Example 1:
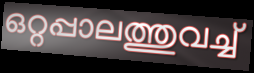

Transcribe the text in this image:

ഒറ്റപ്പാലത്തുവച്ച്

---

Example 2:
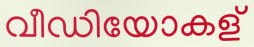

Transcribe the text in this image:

വീഡിയോകള്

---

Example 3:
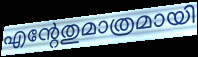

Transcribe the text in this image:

എന്റേതുമാത്രമായി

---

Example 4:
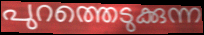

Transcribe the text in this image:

പുറത്തെടുക്കുന്ന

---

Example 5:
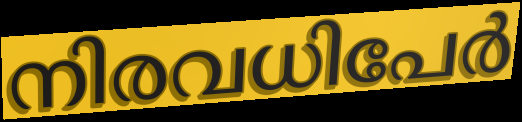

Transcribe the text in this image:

നിരവധിപേർ